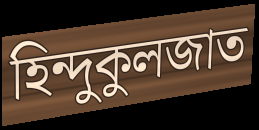
হিন্দুকুলজাত